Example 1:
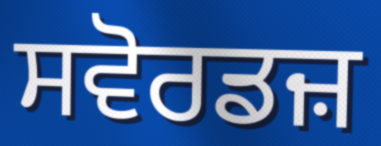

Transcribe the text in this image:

ਸਵੋਰਡਜ਼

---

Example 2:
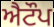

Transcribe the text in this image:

ਐਟੌਪ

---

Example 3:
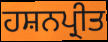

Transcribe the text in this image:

ਹਸ਼ਨਪ੍ਰੀਤ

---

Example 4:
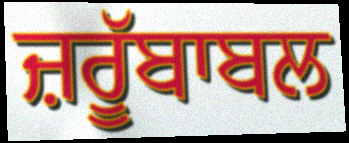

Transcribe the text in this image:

ਜ਼ਰੂੱਬਾਬਲ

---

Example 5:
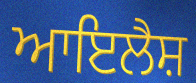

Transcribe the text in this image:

ਆਇਲੈਸ਼